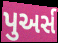
પુઅર્સ